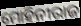
ମୋହିନୀରାଜ